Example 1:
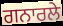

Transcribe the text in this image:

ਗਨਾਰਲੇ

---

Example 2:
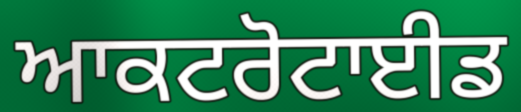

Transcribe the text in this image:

ਆਕਟਰੋਟਾਈਡ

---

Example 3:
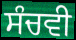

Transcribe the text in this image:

ਸੰਚਵੀ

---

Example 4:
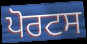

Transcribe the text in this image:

ਪੋਰਟਸ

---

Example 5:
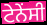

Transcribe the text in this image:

ਟੇਨੇਂਸੀ